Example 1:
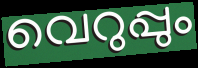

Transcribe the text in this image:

വെറുപ്പും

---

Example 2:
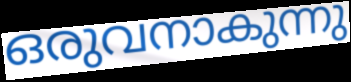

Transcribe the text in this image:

ഒരുവനാകുന്നു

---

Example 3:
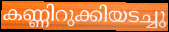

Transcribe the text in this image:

കണ്ണിറുക്കിയടച്ചു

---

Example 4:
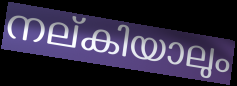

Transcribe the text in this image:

നല്‌കിയാലും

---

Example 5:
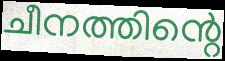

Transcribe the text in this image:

ചീനത്തിന്റെ